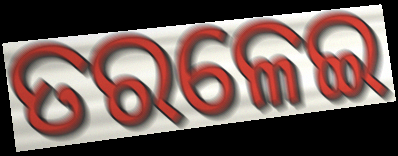
ତରଳେଇ